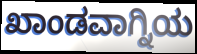
ಖಾಂಡವಾಗ್ನಿಯ